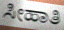
ಸೀಹಾತಿ